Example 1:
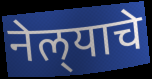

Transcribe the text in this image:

नेल्याचे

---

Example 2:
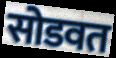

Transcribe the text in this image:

सोडवत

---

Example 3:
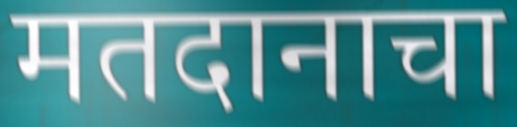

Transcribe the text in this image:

मतदानाचा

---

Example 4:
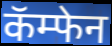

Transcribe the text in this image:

कॅम्फेन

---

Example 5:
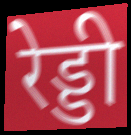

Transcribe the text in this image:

रेड्डी